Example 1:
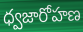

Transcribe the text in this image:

ధ్వజారోహణ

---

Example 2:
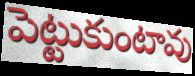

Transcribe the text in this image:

పెట్టుకుంటావు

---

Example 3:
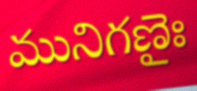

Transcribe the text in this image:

మునిగణైః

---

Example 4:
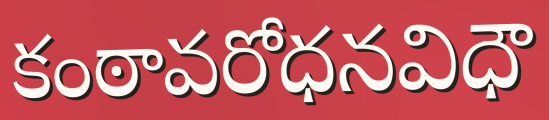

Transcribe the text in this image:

కంఠావరోధనవిధౌ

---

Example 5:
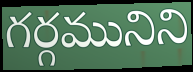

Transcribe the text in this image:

గర్గమునిని